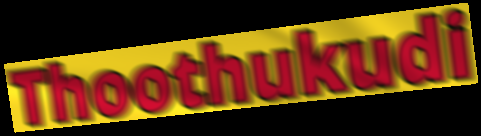
Thoothukudi